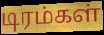
டிரம்கள்